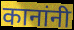
कानांनी